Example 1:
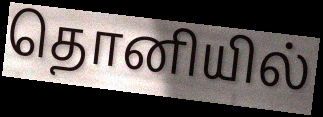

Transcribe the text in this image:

தொனியில்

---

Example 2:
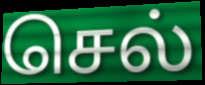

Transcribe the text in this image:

செல்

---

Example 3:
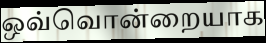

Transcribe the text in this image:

ஒவ்வொன்றையாக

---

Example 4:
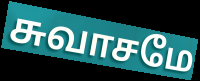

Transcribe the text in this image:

சுவாசமே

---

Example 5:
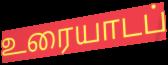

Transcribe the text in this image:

உரையாடப்